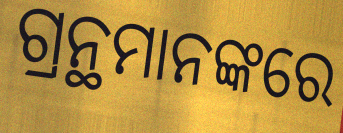
ଗ୍ରନ୍ଥମାନଙ୍କରେ